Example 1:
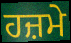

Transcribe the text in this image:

ਹਜ਼ਮੇ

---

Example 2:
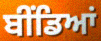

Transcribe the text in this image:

ਬੀਂਡਿਆਂ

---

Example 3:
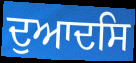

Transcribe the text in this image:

ਦੁਆਦਸਿ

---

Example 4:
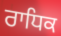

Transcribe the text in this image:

ਰਾਧਿਕ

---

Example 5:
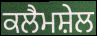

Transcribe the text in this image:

ਕਲੈਮਸ਼ੇਲ